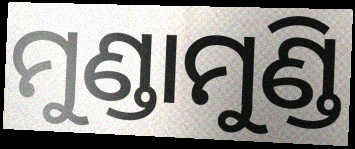
ମୁଣ୍ଡାମୁଣ୍ଡି